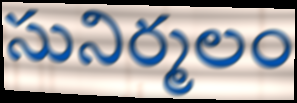
సునిర్మలం